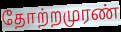
தோற்றமுரண்